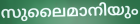
സുലൈമാനിയും